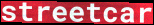
streetcar